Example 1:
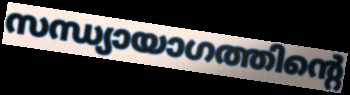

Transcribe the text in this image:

സന്ധ്യായാഗത്തിന്റെ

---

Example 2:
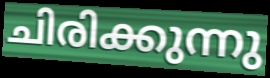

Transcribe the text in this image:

ചിരിക്കുന്നു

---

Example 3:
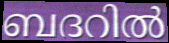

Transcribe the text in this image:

ബദറിൽ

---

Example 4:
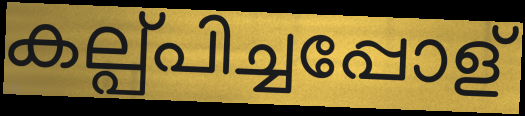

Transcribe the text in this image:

കല്പ്പിച്ചപ്പോള്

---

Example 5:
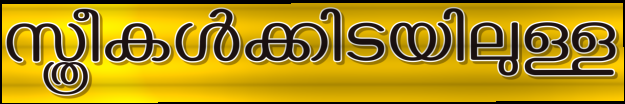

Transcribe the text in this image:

സ്ത്രീകൾക്കിടയിലുള്ള